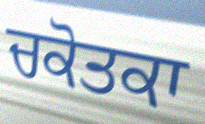
ਚਕੋਤਕਾ